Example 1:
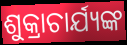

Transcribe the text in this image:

ଶୁକ୍ରାଚାର୍ଯ୍ୟଙ୍କ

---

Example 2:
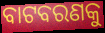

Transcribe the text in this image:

ବାଟବରଣକୁ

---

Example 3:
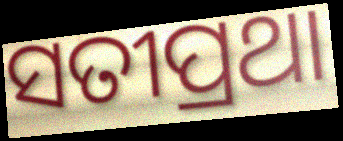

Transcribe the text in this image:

ସତୀପ୍ରଥା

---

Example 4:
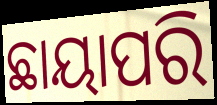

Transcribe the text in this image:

ଛାୟାପରି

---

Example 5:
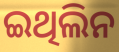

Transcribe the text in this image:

ଇଥିଲିନ